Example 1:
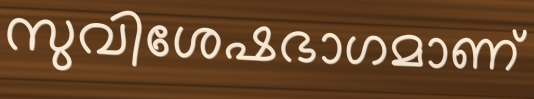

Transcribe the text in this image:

സുവിശേഷഭാഗമാണ്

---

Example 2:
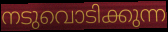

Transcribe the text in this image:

നടുവൊടിക്കുന്ന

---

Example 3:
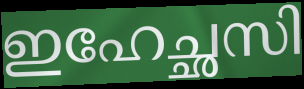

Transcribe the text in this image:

ഇഹേച്ഛസി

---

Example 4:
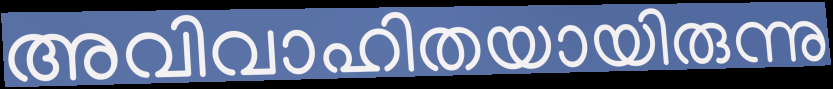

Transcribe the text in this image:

അവിവാഹിതയായിരുന്നു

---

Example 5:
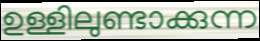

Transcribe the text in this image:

ഉള്ളിലുണ്ടാക്കുന്ന